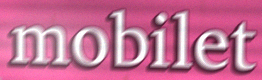
mobilet